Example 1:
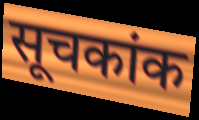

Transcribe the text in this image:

सूचकांक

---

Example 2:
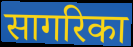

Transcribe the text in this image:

सागरिका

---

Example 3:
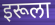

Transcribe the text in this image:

इरूला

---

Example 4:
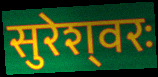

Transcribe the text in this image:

सुरेश्वरः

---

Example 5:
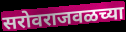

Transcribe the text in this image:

सरोवराजवळच्या